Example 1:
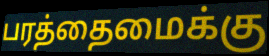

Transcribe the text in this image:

பரத்தைமைக்கு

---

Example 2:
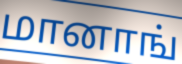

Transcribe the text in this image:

மானாங்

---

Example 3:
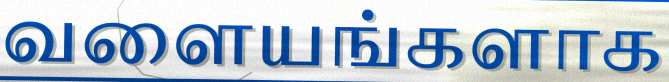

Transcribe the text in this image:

வளையங்களாக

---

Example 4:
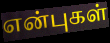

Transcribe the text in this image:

என்புகள்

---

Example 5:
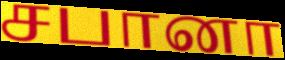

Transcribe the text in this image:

சபானா